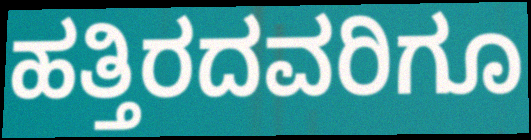
ಹತ್ತಿರದವರಿಗೂ